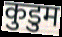
कुडुम